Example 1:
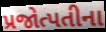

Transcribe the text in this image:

પ્રજોત્પતીના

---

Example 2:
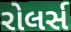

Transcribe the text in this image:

રોલર્સ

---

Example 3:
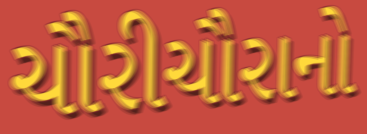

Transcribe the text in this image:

ચૌરીચૌરાનો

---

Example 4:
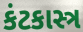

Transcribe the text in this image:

કંટકાસ્ત્ર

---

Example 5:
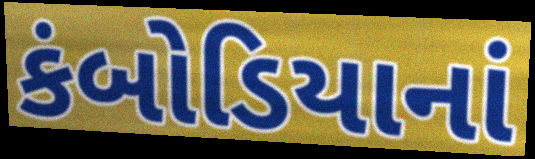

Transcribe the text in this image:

કંબોડિયાનાં